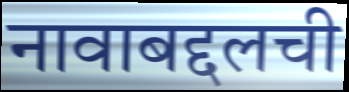
नावाबद्दलची